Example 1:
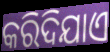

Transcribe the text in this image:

କରିଦିଯାଏ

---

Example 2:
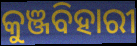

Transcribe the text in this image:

କୁଞ୍ଜବିହାରୀ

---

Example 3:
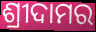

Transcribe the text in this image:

ଶ୍ରୀଦାମର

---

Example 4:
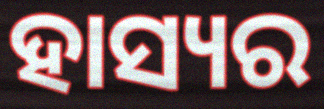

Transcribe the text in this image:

ହାସ୍ୟର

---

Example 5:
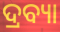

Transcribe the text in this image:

ଦ୍ରବ୍ୟା